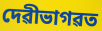
দেৱীভাগৱত